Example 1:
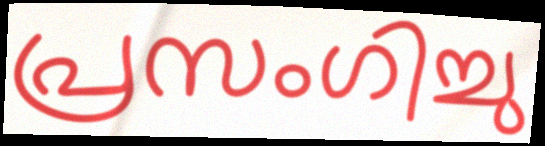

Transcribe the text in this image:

പ്രസംഗിച്ചു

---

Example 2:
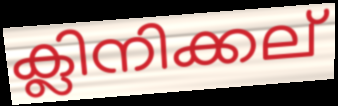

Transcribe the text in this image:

ക്ലിനിക്കല്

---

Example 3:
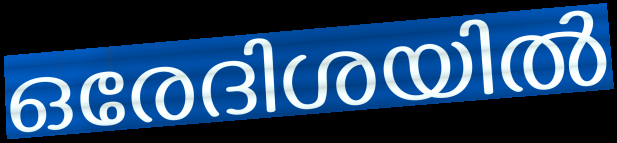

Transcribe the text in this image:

ഒരേദിശയിൽ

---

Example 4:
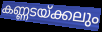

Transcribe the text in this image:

കണ്ണടയ്ക്കലും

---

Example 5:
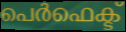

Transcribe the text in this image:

പെർഫെക്ട്